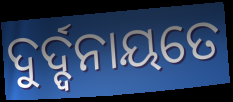
ଦୁର୍ଦ୍ଦନାୟତେ